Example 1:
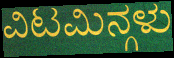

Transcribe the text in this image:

ವಿಟಮಿನ್ಗಳು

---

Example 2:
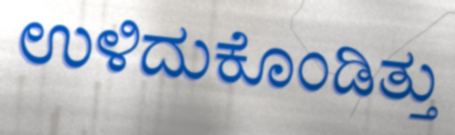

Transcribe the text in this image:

ಉಳಿದುಕೊಂಡಿತ್ತು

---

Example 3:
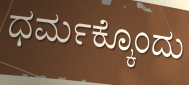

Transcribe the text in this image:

ಧರ್ಮಕ್ಕೊಂದು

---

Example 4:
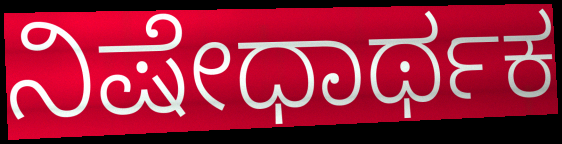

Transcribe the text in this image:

ನಿಷೇಧಾರ್ಥಕ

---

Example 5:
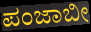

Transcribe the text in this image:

ಪಂಜಾಬೀ